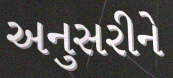
અનુસરીને